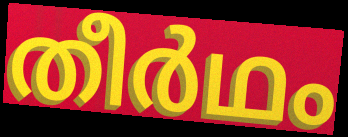
തീർഥം